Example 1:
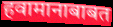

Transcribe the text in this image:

हवामानाबाबत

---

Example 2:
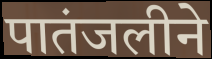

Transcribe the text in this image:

पातंजलीने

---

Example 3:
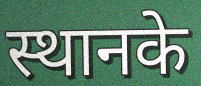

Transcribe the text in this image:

स्थानके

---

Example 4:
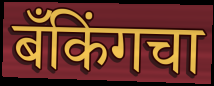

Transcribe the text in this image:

बँकिंगचा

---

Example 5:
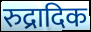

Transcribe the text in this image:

रुद्रादिक